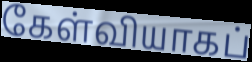
கேள்வியாகப்